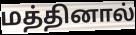
மத்தினால்